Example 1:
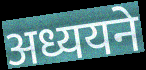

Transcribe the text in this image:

अध्ययने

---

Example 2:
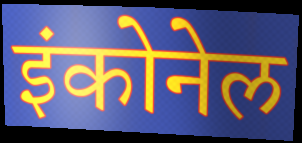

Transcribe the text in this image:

इंकोनेल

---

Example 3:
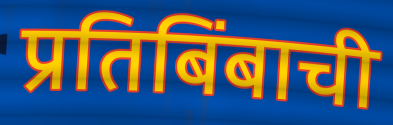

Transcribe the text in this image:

प्रतिबिंबाची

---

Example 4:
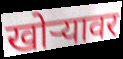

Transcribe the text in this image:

खोऱ्यावर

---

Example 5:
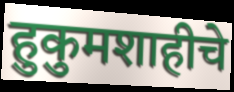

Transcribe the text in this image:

हुकुमशाहीचे